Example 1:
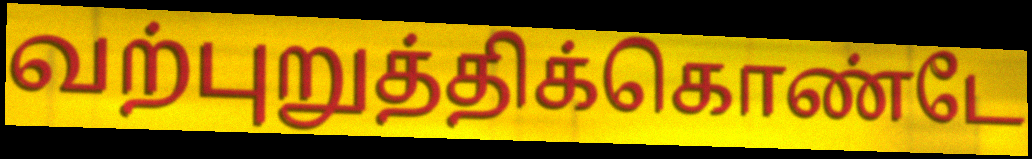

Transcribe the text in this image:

வற்புறுத்திக்கொண்டே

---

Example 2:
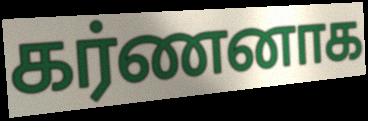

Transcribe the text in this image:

கர்ணனாக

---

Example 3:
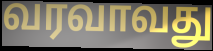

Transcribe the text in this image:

வரவாவது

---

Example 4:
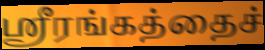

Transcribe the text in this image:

ஸ்ரீரங்கத்தைச்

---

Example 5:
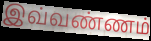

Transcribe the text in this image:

இவ்வண்ணம்